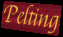
Pelting